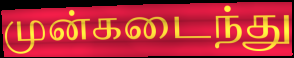
முன்கடைந்து